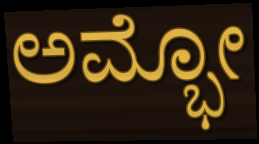
ಅಮ್ಭೋ